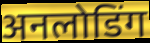
अनलोडिंग